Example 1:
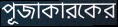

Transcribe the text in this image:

পূজাকারকের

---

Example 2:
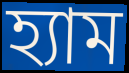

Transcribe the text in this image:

হ্যাম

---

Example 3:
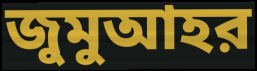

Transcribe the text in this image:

জুমুআহর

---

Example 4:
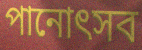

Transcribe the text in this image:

পানোৎসব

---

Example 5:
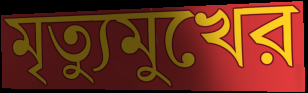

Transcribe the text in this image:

মৃত্যুমুখের